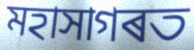
মহাসাগৰত